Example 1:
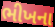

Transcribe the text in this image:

ભીખના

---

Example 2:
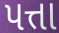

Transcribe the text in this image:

પત્તા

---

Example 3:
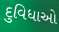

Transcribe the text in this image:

દુવિધાઓ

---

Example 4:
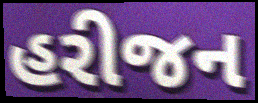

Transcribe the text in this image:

હરીજન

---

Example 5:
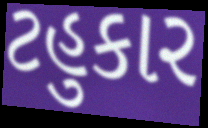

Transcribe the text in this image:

ટહુકાર